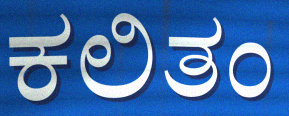
ಕಲಿತಂ